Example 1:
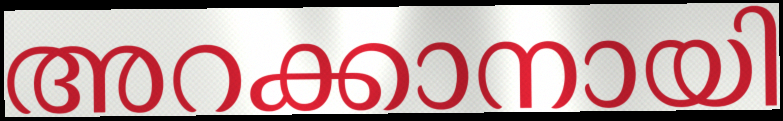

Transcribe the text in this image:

അറക്കാനായി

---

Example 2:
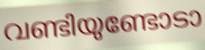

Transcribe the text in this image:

വണ്ടിയുണ്ടോടാ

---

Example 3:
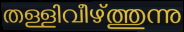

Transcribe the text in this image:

തള്ളിവീഴ്ത്തുന്നു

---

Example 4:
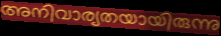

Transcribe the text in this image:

അനിവാര്യതയായിരുന്നു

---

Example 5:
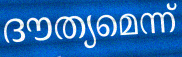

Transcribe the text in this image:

ദൗത്യമെന്ന്